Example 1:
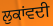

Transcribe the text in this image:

ਲੁਕਾਂਵਦੀ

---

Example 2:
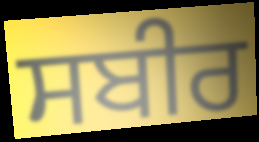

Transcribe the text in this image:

ਸਬੀਰ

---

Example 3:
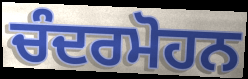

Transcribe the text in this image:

ਚੰਦਰਮੋਹਨ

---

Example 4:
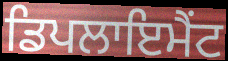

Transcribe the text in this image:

ਡਿਪਲਾਇਮੈਂਟ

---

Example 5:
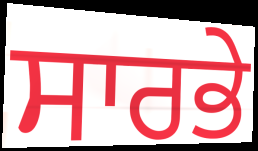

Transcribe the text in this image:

ਸਾਰਭੇ